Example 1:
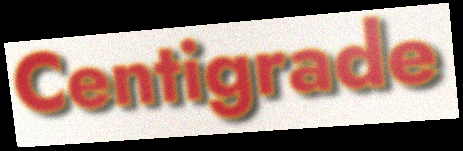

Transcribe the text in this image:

Centigrade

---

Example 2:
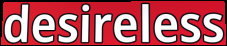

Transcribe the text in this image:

desireless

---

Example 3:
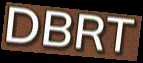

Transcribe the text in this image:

DBRT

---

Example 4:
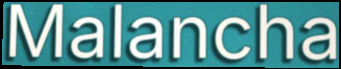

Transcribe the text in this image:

Malancha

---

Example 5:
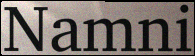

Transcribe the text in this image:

Namni